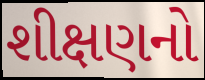
શીક્ષણનો